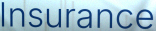
Insurance